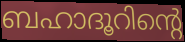
ബഹാദൂറിന്റെ